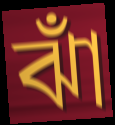
ঝাঁ